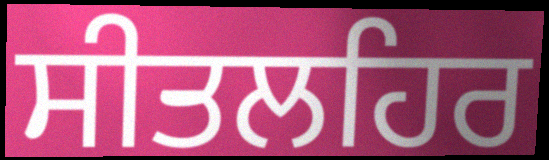
ਸੀਤਲਹਿਰ